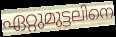
ഏറ്റുമുട്ടലിനെ